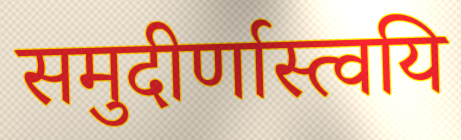
समुदीर्णास्त्वयि